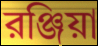
রঞ্জিয়া